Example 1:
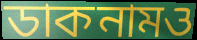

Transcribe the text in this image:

ডাকনামও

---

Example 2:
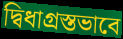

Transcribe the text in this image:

দ্বিধাগ্রস্তভাবে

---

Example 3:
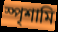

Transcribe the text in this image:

স্পৃশামি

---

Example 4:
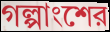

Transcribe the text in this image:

গল্পাংশের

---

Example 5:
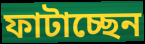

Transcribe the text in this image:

ফাটাচ্ছেন